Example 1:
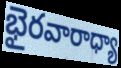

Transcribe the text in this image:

భైరవారాధ్యా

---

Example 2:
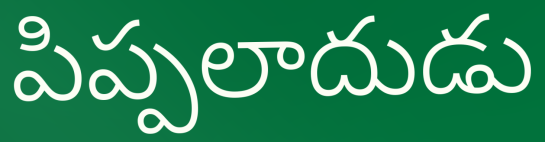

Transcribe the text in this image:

పిప్పలాదుడు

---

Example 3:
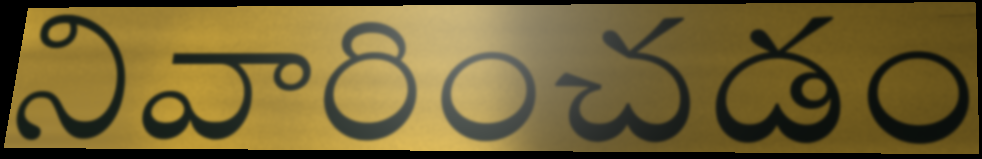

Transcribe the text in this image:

నివారించడం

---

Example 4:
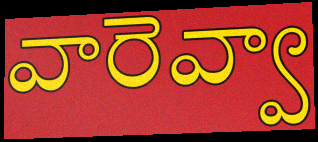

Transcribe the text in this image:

వారెవ్వా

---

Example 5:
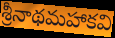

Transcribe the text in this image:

శ్రీనాథమహాకవి